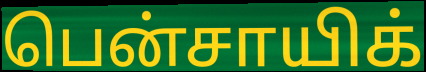
பென்சாயிக்